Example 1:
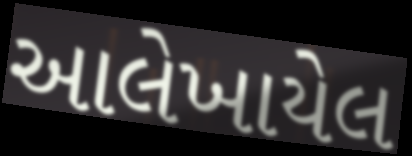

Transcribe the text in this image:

આલેખાયેલ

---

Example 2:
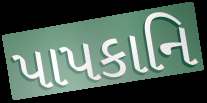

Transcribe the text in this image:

પાપકાનિ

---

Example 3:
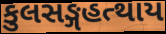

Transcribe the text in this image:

કુલસઙ્ગહત્થાય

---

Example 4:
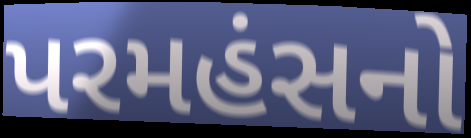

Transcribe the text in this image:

પરમહંસનો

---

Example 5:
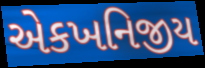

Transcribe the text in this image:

એકખનિજીય